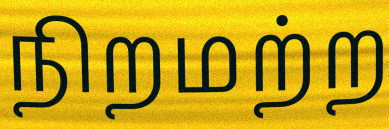
நிறமற்ற